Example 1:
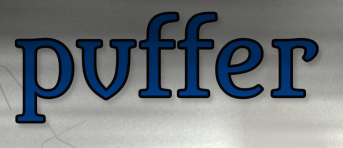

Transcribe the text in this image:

puffer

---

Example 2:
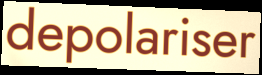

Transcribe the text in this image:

depolariser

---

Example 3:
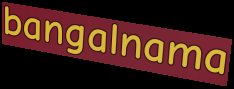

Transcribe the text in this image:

bangalnama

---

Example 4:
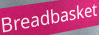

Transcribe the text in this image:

Breadbasket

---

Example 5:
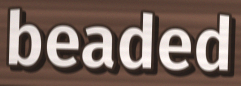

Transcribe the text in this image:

beaded